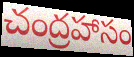
చంద్రహాసం